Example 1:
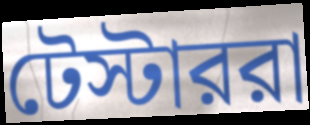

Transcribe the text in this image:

টেস্টাররা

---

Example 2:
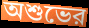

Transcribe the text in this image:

অশুভের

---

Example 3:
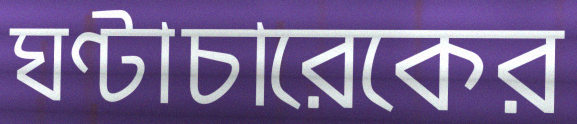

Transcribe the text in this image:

ঘণ্টাচারেকের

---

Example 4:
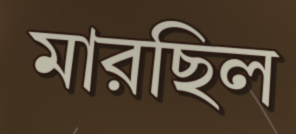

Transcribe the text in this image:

মারছিল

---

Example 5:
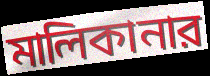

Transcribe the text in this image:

মালিকানার